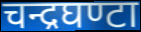
चन्द्रघण्टा